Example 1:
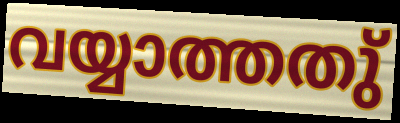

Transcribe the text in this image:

വയ്യാത്തതു്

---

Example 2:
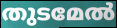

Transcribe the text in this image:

തുടമേൽ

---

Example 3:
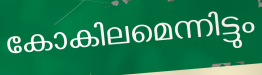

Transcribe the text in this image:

കോകിലമെന്നിട്ടും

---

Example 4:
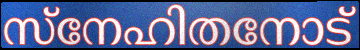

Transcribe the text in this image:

സ്നേഹിതനോട്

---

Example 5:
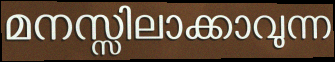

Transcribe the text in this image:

മനസ്സിലാക്കാവുന്ന